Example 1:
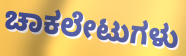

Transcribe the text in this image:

ಚಾಕಲೇಟುಗಳು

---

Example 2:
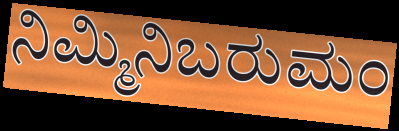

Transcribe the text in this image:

ನಿಮ್ಮಿನಿಬರುಮಂ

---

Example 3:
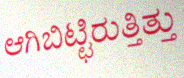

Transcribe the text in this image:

ಆಗಿಬಿಟ್ಟಿರುತ್ತಿತ್ತು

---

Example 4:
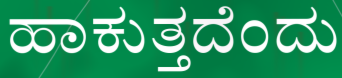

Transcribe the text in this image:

ಹಾಕುತ್ತದೆಂದು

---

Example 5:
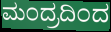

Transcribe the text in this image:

ಮಂದ್ರದಿಂದ